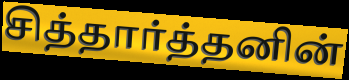
சித்தார்த்தனின்